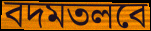
বদমতলবে